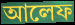
আলেফ